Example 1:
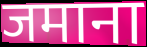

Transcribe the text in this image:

जमाना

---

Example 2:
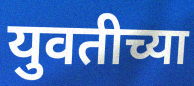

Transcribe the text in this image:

युवतीच्या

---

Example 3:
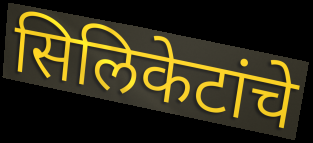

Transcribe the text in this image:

सिलिकेटांचे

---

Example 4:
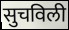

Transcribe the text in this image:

सुचविली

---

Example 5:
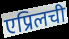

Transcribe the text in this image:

एप्रिलची